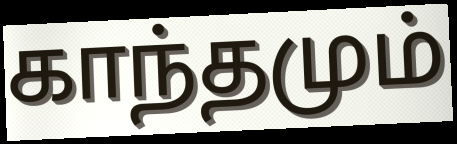
காந்தமும்